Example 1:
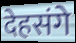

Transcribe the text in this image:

देहसंगे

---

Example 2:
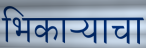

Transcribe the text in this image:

भिकाऱ्याचा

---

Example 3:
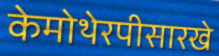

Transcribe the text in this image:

केमोथेरपीसारखे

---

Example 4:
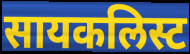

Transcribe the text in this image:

सायकलिस्ट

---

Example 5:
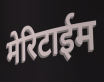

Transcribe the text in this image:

मेरिटाईम